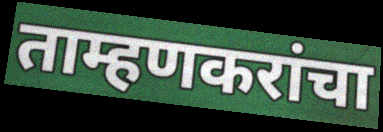
ताम्हणकरांचा